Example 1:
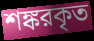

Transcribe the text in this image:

শঙ্করকৃত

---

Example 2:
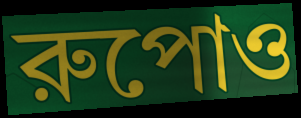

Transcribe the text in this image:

রুপোও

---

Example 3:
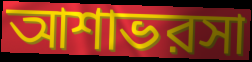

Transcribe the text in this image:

আশাভরসা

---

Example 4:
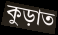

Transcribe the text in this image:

কুড়াত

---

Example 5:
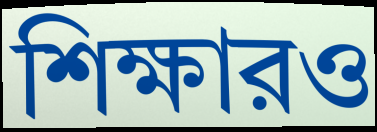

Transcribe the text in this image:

শিক্ষারও